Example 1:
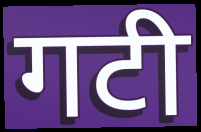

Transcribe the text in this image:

गटी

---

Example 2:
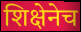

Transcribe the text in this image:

शिक्षेनेच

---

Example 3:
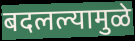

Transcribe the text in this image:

बदलल्यामुळे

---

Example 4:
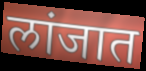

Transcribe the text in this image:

लांजात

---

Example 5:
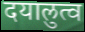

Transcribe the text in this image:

दयालुत्व